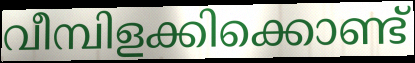
വീമ്പിളക്കിക്കൊണ്ട്